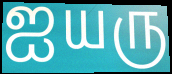
ஐயரு